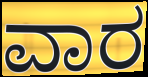
ವಾರ